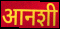
आनशी